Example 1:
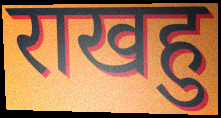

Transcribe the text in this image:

राखहु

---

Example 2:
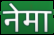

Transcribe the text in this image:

नेमा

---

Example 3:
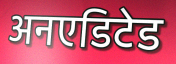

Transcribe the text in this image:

अनएडिटेड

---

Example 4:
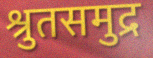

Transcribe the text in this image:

श्रुतसमुद्र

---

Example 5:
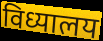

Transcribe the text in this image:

विध्यालय